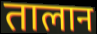
तालान